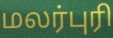
மலர்புரி